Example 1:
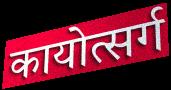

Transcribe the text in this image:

कायोत्सर्ग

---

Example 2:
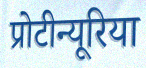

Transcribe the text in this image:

प्रोटीन्यूरिया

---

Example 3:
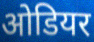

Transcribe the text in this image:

ओडियर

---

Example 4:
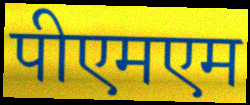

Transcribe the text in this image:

पीएमएम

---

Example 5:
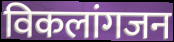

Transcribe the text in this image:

विकलांगजन